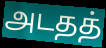
அடதத்